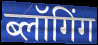
ब्लॉगिंग